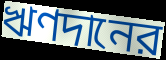
ঋণদানের